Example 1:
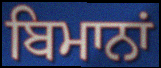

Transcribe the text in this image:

ਬਿਮਾਨਾਂ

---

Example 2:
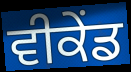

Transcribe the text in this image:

ਵੀਕੇਂਡ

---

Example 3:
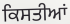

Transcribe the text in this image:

ਕਿਸਤੀਆਂ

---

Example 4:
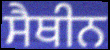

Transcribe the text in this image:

ਸੈਥੀਨ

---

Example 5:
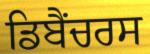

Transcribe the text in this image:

ਡਿਬੈਂਚਰਸ